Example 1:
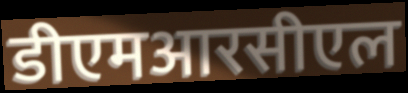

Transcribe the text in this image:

डीएमआरसीएल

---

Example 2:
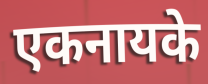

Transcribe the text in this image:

एकनायके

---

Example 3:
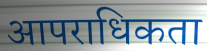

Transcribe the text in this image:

आपराधिकता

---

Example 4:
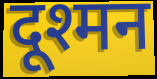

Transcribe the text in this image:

दूश्मन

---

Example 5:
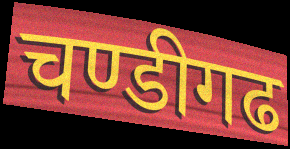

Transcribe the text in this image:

चण्डीगढ